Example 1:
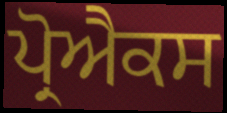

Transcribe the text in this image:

ਪ੍ਰੋਐਕਸ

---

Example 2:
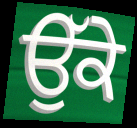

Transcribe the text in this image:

ਉੱਕੇ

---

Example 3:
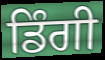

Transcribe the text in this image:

ਡਿੰਗੀ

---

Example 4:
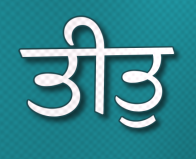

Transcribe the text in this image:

ਤੀਤੁ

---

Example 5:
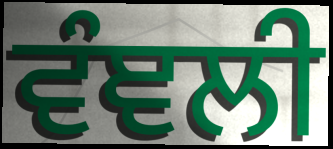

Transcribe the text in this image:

ਵੰਞਲੀ